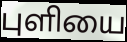
புளியை